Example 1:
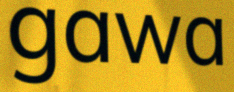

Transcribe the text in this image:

gawa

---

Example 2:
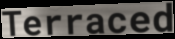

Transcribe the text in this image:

Terraced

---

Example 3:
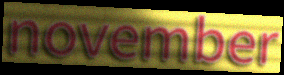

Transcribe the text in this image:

november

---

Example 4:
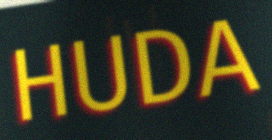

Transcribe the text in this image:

HUDA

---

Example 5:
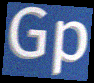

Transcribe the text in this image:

Gp